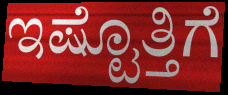
ಇಷ್ಟೊತ್ತಿಗೆ